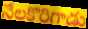
నేలకొరిగాడు